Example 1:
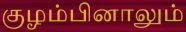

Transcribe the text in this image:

குழம்பினாலும்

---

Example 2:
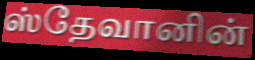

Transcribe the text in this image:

ஸ்தேவானின்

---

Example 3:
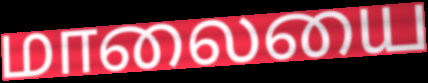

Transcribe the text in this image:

மாலையை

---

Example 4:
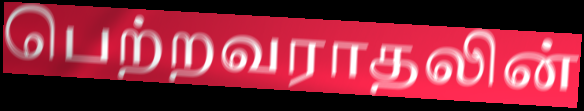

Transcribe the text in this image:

பெற்றவராதலின்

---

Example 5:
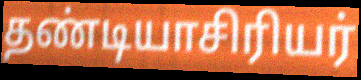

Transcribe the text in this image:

தண்டியாசிரியர்